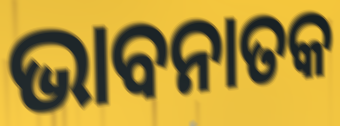
ଭାବନାତକ